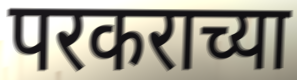
परकराच्या